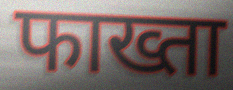
फाख्ता